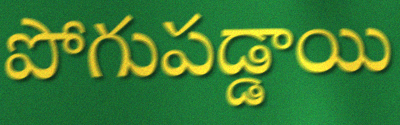
పోగుపడ్డాయి